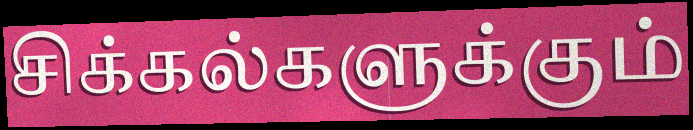
சிக்கல்களுக்கும்